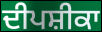
ਦੀਪਸ਼ੀਕਾ